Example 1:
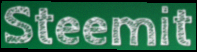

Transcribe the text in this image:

Steemit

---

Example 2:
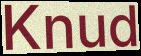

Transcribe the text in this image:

Knud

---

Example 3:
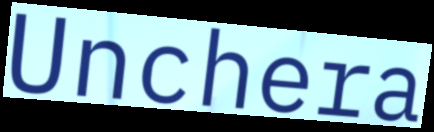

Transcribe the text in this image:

Unchera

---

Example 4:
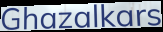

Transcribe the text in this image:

Ghazalkars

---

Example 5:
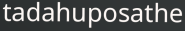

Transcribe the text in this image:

tadahuposathe